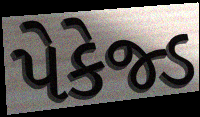
પેકેજ્ડ